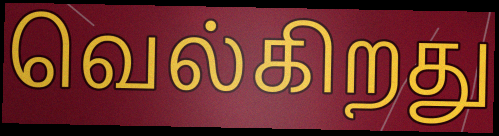
வெல்கிறது